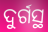
ଦୁର୍ଗସ୍ଥ